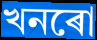
খনৰো